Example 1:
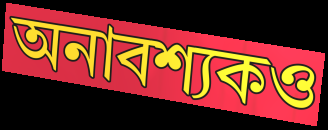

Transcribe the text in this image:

অনাবশ্যকও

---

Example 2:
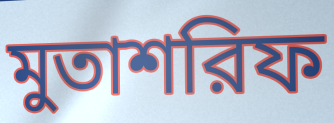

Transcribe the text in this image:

মুতাশরিফ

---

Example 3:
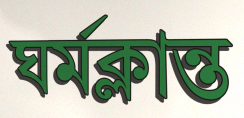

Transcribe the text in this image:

ঘর্মক্লান্ত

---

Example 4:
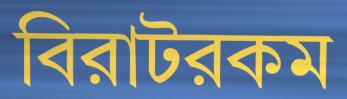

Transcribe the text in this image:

বিরাটরকম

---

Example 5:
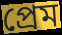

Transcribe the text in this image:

প্রেম